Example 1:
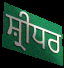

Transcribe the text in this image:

ਸ਼੍ਰੀਧਰ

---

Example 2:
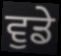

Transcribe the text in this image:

ਵੁਡੇ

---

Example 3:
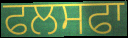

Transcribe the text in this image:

ਫਲਸਫਾ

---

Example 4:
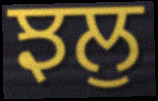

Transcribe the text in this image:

ਝਲੁ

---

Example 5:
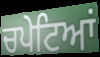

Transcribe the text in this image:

ਚਪੇਟਿਆਂ